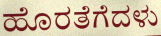
ಹೊರತೆಗೆದಳು